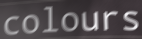
colours